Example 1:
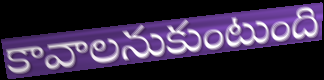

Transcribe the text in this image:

కావాలనుకుంటుంది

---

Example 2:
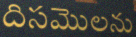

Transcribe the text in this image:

దిసమొలను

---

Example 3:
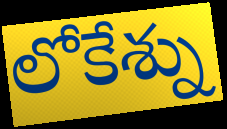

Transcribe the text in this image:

లోకేశ్ను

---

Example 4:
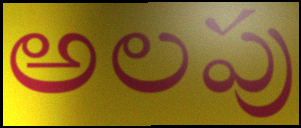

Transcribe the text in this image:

అలపు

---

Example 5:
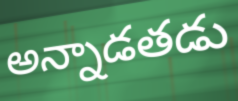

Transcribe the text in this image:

అన్నాడతడు